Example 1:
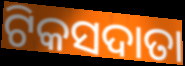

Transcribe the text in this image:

ଟିକସଦାତା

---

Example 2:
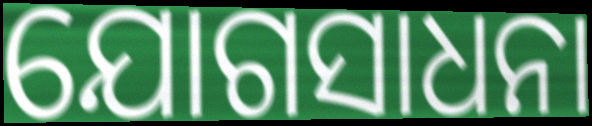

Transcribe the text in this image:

ଯୋଗସାଧନା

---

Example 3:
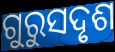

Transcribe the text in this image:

ଗୁରୁସଦୃଶ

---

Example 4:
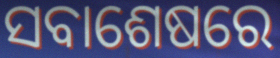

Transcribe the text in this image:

ସବାଶେଷରେ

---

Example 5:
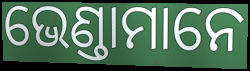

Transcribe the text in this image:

ଭେଣ୍ଡାମାନେ